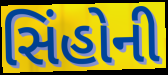
સિંહોની